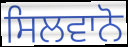
ਸਿਲਵਾਨੋ